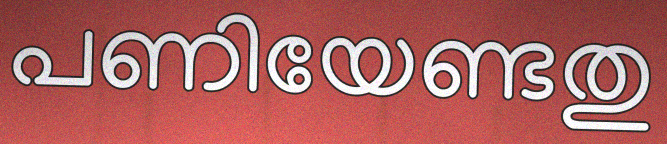
പണിയേണ്ടതു